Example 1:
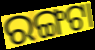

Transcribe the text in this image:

ରଙ୍ଗଟା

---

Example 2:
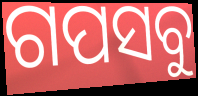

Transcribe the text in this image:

ଗପସବୁ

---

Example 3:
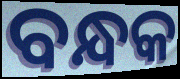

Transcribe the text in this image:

ବନ୍ଧକ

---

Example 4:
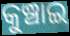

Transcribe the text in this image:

କୁଞ୍ଚାଇ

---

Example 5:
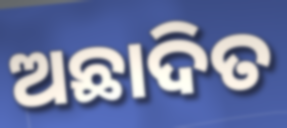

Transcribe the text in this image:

ଅଛାଦିତ